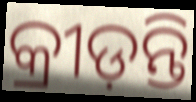
କ୍ରୀଡ଼ନ୍ତି